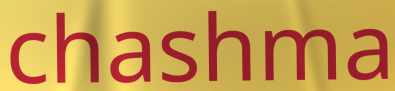
chashma